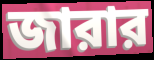
জারার